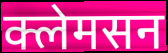
क्लेमसन